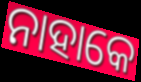
ନାହାକେ